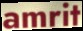
amrit